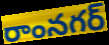
రాంనగర్